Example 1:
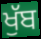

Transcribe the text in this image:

ਖੁੱਬ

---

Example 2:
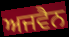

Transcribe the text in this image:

ਅਜਵੈਨ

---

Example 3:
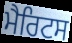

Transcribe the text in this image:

ਮੈਰਿਟਸ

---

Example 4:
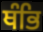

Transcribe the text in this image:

ਥੰਭਿ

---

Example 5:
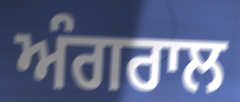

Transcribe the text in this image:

ਅੰਗਰਾਲ